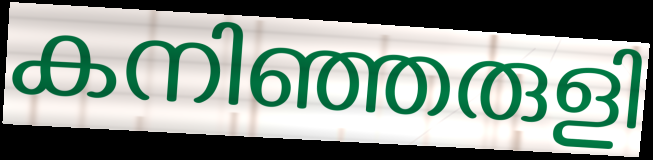
കനിഞ്ഞരുളി